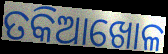
ତକିଆଖୋଳ